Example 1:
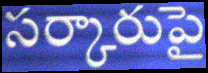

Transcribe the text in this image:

సర్కారుపై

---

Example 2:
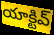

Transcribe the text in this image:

యాక్టివ్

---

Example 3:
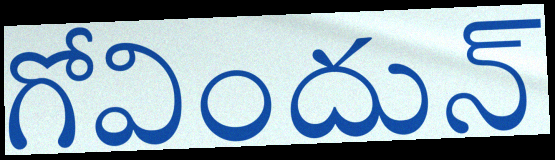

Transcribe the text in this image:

గోవిందున్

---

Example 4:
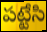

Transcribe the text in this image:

పట్టేసి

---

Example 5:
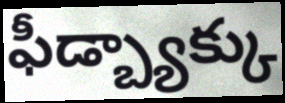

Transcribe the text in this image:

ఫీడ్బ్యాక్కు